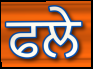
ਫਲੇ